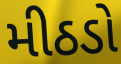
મીઠડો